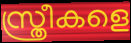
സ്ത്രീകളെ